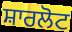
ਸ਼ਾਰਲੋਟ